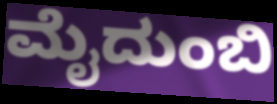
ಮೈದುಂಬಿ